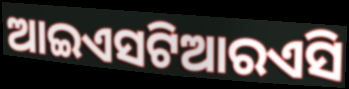
ଆଇଏସଟିଆରଏସି